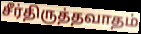
சீர்திருத்தவாதம்